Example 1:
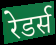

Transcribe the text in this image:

रेडर्स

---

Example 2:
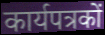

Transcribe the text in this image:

कार्यपत्रकों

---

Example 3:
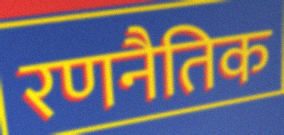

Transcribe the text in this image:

रणनैतिक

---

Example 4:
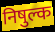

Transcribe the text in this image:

निषुल्क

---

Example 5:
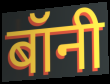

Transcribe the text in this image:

बॉनी